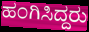
ಹಂಗಿಸಿದ್ದರು